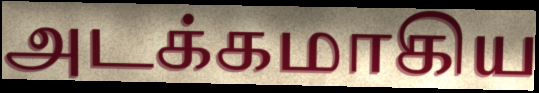
அடக்கமாகிய